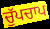
ਚੁੱਪਚਾਪ